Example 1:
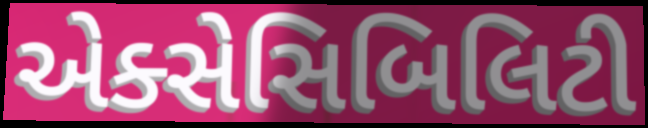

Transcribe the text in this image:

એક્સેસિબિલિટી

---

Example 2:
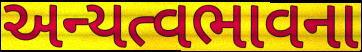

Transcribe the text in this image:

અન્યત્વભાવના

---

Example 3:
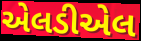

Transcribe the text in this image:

એલડીએલ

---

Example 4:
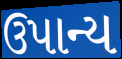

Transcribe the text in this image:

ઉપાન્ય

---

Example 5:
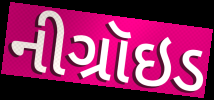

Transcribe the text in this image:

નીગ્રૉઇડ